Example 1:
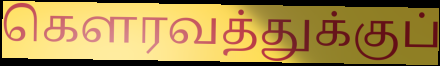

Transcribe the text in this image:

கௌரவத்துக்குப்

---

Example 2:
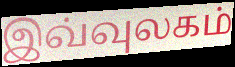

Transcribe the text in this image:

இவ்வுலகம்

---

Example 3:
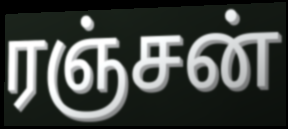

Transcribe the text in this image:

ரஞ்சன்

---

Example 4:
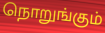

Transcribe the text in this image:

நொறுங்கும்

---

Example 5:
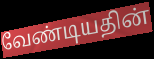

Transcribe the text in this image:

வேண்டியதின்